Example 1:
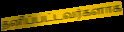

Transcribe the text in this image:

தனிப்பட்டவர்களாக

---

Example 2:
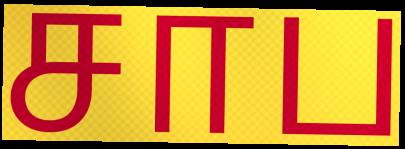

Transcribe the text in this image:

சாப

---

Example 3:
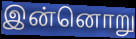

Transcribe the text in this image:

இன்னொறு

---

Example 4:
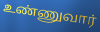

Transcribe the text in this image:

உண்ணுவார்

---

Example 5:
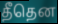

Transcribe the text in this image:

தீதென